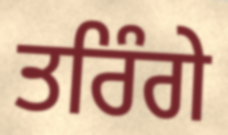
ਤਰਿੰਗੇ